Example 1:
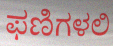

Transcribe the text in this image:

ಫಣಿಗಳಲಿ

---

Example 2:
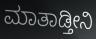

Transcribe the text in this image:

ಮಾತಾಡ್ತೀನಿ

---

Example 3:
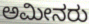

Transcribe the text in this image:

ಅಮೀನರು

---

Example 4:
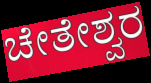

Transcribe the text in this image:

ಚೇತೇಶ್ವರ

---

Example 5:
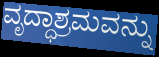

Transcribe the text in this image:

ವೃದ್ಧಾಶ್ರಮವನ್ನು